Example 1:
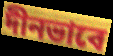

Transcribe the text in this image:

দীনভাবে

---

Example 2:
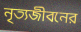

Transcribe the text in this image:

নৃত্যজীবনের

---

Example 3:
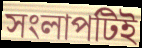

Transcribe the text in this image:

সংলাপটিই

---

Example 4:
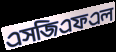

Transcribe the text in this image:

এসজিএফএল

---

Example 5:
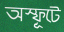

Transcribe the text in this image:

অস্ফূটে